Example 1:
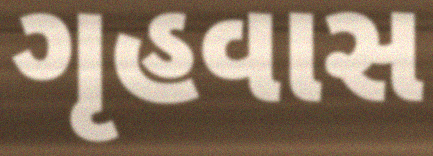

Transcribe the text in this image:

ગૃહવાસ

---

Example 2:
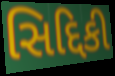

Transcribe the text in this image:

સિદ્દિકી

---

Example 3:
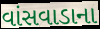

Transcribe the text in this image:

વાંસવાડાના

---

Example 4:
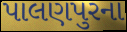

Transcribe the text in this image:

પાલણપુરના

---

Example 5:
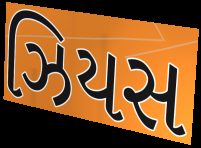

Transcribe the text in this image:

ઝિયસ